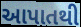
આપાતથી